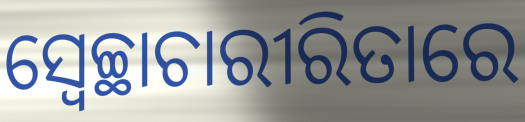
ସ୍ଵେଚ୍ଛାଚାରୀରିତାରେ